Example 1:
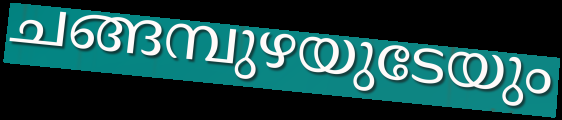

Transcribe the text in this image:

ചങ്ങമ്പുഴയുടേയും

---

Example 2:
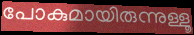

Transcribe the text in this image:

പോകുമായിരുന്നുള്ളൂ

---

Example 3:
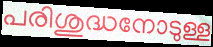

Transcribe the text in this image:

പരിശുദ്ധനോടുള്ള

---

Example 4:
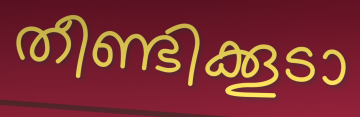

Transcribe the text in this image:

തീണ്ടിക്കൂടാ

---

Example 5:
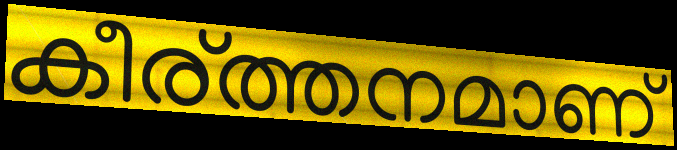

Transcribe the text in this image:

കീര്ത്തനമാണ്